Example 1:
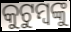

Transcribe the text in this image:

କୁଟୁମ୍ବଙ୍କୁ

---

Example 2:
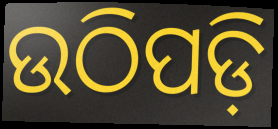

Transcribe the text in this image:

ଉଠିପଡ଼ି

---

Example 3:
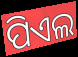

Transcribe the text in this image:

ପିଏଲ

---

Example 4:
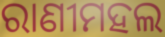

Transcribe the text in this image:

ରାଣୀମହଲ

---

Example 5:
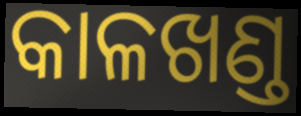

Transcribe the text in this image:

କାଳଖଣ୍ଡ